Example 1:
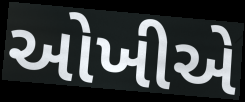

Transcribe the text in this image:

ઓખીએ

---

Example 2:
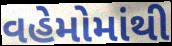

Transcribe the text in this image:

વહેમોમાંથી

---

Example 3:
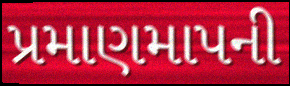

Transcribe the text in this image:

પ્રમાણમાપની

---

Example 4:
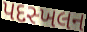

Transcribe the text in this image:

પદસ્ખલન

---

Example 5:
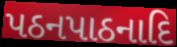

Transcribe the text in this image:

પઠનપાઠનાદિ